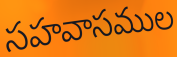
సహవాసముల